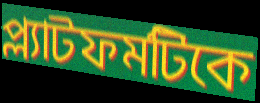
প্ল্যাটফর্মটিকে